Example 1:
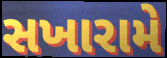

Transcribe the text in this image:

સખારામે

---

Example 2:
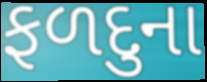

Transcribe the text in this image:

ફળદુના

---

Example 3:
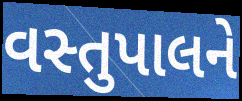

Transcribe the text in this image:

વસ્તુપાલને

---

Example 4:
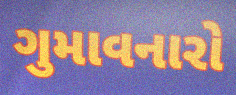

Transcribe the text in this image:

ગુમાવનારો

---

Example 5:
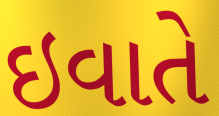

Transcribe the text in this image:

ઇવાતે